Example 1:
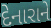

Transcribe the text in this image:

દેનારાને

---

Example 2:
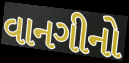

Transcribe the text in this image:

વાનગીનો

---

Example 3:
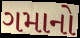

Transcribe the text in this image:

ગમાનો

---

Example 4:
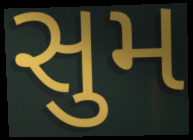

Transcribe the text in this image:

સુમ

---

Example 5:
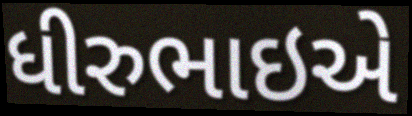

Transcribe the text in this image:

ધીરુભાઇએ